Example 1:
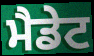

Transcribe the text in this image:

ਮੈਡੇਟ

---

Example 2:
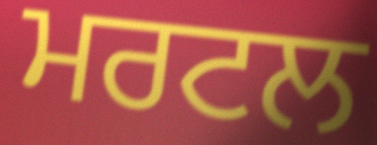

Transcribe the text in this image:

ਮਰਟਲ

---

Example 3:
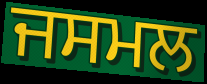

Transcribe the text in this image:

ਜਸਮਲ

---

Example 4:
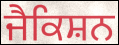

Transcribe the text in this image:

ਜੈਕਿਸ਼ਨ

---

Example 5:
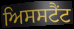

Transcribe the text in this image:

ਅਿਸਸਟੈਂਟ